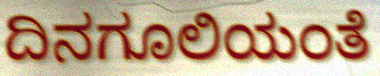
ದಿನಗೂಲಿಯಂತೆ